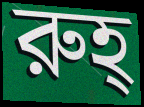
রুহ্